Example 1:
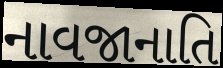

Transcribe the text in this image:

નાવજાનાતિ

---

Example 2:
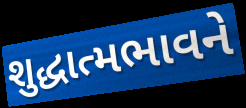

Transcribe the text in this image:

શુદ્ધાત્મભાવને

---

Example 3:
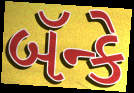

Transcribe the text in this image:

બૅન્કે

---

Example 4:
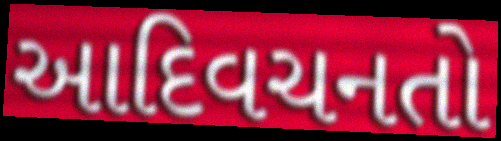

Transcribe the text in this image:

આદિવચનતો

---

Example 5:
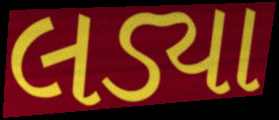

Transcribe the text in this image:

લડ્યા